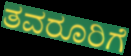
ತವರೂರಿಗೆ